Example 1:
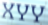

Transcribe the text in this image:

XYY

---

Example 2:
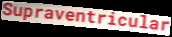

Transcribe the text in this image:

Supraventricular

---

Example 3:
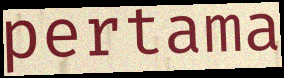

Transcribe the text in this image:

pertama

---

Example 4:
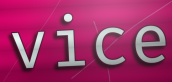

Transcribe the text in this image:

vice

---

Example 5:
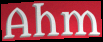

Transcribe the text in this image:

Ahm